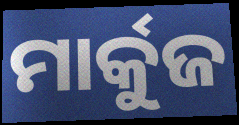
ମାର୍କୁଜ